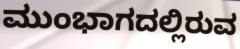
ಮುಂಭಾಗದಲ್ಲಿರುವ